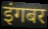
इंगबर